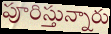
పూరిస్తున్నారు